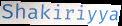
Shakiriyya